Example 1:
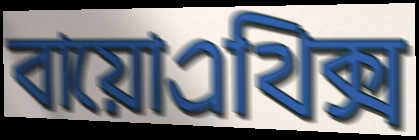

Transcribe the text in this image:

বায়োএথিক্স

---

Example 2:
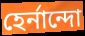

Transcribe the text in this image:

হের্নান্দো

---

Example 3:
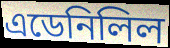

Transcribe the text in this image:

এডেনিলিল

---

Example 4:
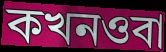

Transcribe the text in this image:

কখনওবা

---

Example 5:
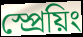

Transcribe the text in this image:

স্প্রেয়িং